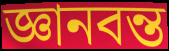
জ্ঞানবন্ত